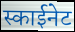
स्काईनेट